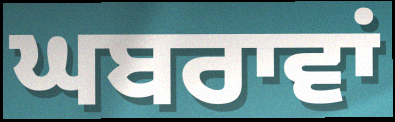
ਘਬਰਾਵਾਂ